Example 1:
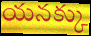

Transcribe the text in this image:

యనక్కు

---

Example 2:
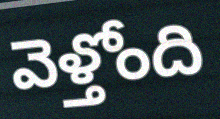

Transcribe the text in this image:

వెళ్తోంది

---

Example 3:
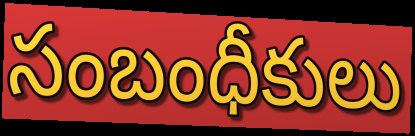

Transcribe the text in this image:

సంబంధీకులు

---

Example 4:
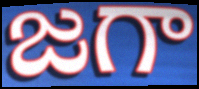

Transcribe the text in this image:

జగా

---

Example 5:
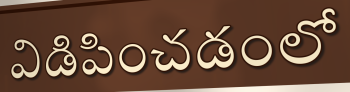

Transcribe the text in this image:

విడిపించడంలో